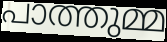
പാത്തുമ്മ